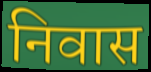
निवास